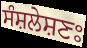
ਸੰਸ਼ਲੇਸ਼ਣਃ